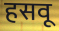
हसवू